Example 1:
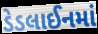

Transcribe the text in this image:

ડેડલાઈનમાં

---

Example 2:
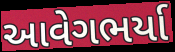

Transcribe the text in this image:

આવેગભર્યા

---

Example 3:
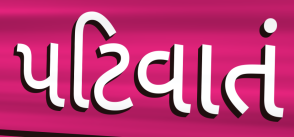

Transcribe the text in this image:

પટિવાતં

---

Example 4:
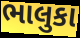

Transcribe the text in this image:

ભાલુકા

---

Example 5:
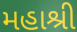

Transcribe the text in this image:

મહાશ્રી